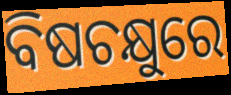
ବିଷଚକ୍ଷୁରେ